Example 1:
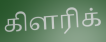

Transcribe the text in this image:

கிளரிக்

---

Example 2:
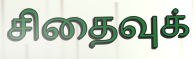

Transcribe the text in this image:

சிதைவுக்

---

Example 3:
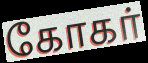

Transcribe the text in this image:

கோகர்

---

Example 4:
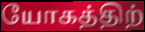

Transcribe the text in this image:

யோகத்திற்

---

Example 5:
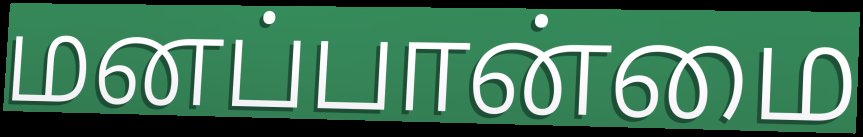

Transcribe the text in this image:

மனப்பான்மை